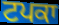
ਟਪਕਾ